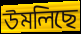
উমলিছে